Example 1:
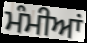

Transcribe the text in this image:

ਮੰਮੀਆਂ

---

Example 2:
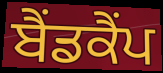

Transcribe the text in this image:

ਬੈਂਡਕੈਂਪ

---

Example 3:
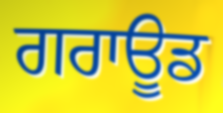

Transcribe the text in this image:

ਗਰਾਊਡ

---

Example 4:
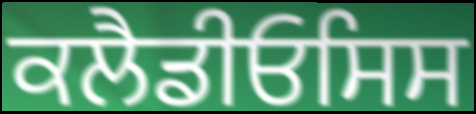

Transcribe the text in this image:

ਕਲੈਡੀਓਸਿਸ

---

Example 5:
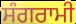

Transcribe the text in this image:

ਸੰਗਰਾਮੀ